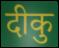
दीकु